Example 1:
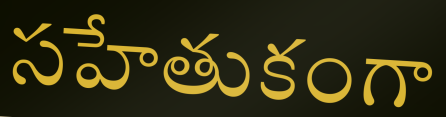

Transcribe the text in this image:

సహేతుకంగా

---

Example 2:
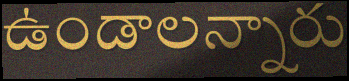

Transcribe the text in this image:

ఉండాలన్నారు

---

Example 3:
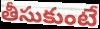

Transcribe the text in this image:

తీసుకుంటే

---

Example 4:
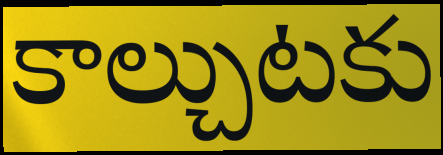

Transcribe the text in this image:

కాల్చుటకు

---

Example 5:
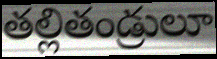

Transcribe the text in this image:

తల్లితండ్రులూ